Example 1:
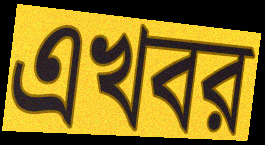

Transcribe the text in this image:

এখবর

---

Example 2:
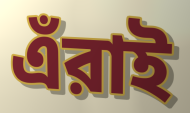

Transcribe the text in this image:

এঁরাই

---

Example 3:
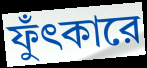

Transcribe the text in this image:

ফুঁৎকারে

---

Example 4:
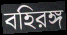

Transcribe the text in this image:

বহিরঙ্গ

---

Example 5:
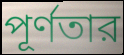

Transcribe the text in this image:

পূর্ণতার